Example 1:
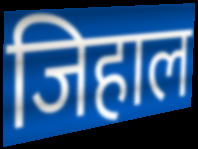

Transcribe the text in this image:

जिहाल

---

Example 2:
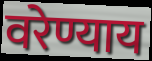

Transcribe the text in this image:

वरेण्याय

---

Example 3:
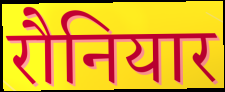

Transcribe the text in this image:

रौनियार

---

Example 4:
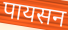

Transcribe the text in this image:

पायसन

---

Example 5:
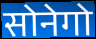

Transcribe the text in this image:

सोनेगो